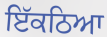
ਇੱਕਠਿਆ